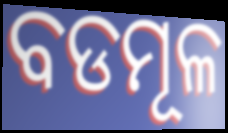
ବଡମୂଳ